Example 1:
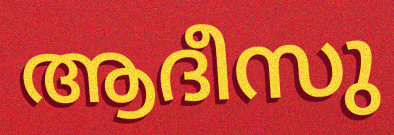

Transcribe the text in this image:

ആദീസു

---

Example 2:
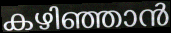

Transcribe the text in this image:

കഴിഞ്ഞാൻ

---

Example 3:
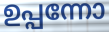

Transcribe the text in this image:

ഉപ്പന്നോ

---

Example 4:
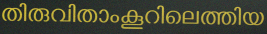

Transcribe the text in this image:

തിരുവിതാംകൂറിലെത്തിയ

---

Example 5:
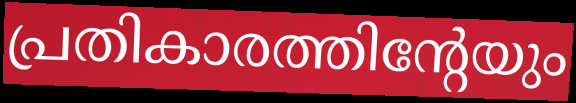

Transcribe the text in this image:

പ്രതികാരത്തിന്റേയും